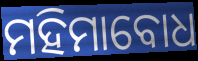
ମହିମାବୋଧ